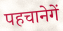
पहचानेगें